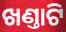
ଖଣ୍ତାଟି